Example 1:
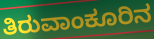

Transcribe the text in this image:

ತಿರುವಾಂಕೂರಿನ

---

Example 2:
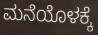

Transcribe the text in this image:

ಮನೆಯೊಳಕ್ಕೆ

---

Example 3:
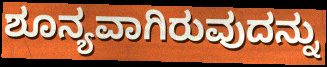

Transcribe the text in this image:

ಶೂನ್ಯವಾಗಿರುವುದನ್ನು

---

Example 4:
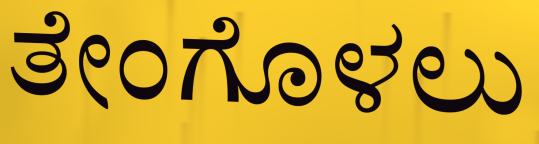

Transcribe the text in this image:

ತೇಂಗೊಳಲು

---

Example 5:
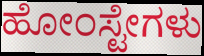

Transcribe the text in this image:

ಹೋಂಸ್ಟೇಗಳು